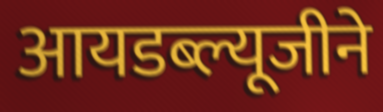
आयडब्ल्यूजीने